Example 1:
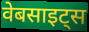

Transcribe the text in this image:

वेबसाइट्स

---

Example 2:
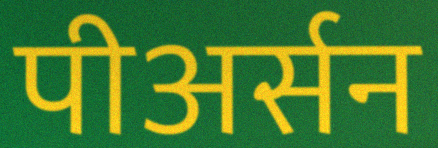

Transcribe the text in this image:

पीअर्सन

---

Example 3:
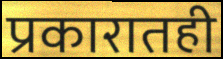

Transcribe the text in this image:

प्रकारातही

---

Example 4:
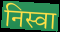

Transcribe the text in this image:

निस्वा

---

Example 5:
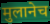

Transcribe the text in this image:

मुलानेच